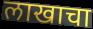
लाखाचा